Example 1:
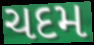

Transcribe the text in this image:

ચદમ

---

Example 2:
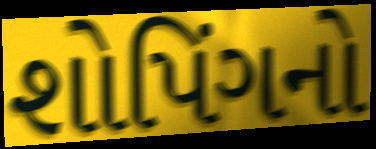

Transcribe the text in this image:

શોપિંગનો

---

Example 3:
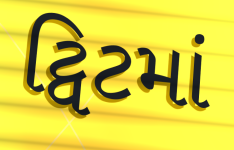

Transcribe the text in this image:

ટ્વિટમાં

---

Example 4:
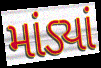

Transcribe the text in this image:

માંડ્યાં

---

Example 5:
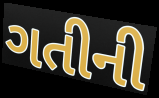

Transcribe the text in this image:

ગતીની